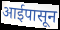
आईपासून